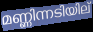
മണ്ണിന്നടിയില്